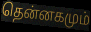
தென்னகமும்